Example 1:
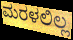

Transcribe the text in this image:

ಮರಳಲಿಲ್ಲ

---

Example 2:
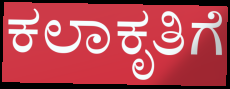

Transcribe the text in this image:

ಕಲಾಕೃತಿಗೆ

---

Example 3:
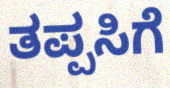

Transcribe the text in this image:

ತಪ್ಪಸಿಗೆ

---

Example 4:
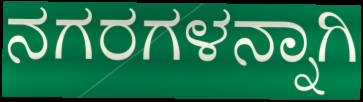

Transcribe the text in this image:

ನಗರಗಳನ್ನಾಗಿ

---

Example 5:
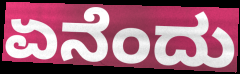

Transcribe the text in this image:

ಏನೆಂದು